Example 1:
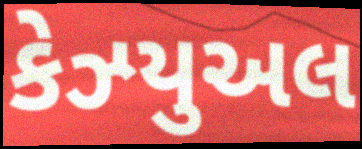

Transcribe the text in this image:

કેઝ્યુઅલ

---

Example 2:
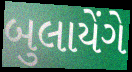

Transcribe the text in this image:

બુલાયેંગે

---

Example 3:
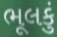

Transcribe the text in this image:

ભૂલકું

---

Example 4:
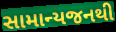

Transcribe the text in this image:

સામાન્યજનથી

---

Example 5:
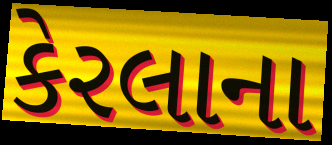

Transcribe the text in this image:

કેરલાના